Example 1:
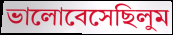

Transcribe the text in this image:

ভালোবেসেছিলুম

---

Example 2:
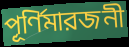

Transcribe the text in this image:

পূর্ণিমারজনী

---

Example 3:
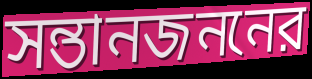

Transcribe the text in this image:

সন্তানজননের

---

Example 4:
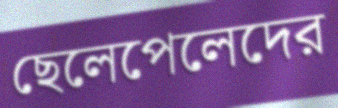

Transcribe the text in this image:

ছেলেপেলেদের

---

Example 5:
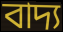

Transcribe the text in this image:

বাদ্য